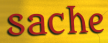
sache